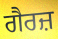
ਗੈਰਜ਼